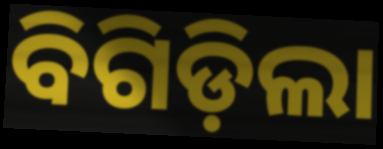
ବିଗିଡ଼ିଲା